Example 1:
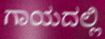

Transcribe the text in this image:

ಗಾಯದಲ್ಲಿ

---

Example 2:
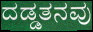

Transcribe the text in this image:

ದಡ್ಡತನವು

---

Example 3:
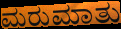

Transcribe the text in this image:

ಮರುಮಾತು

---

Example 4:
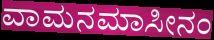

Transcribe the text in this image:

ವಾಮನಮಾಸೀನಂ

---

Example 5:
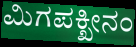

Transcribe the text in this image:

ಮಿಗಪಕ್ಖೀನಂ